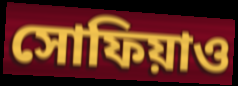
সোফিয়াও